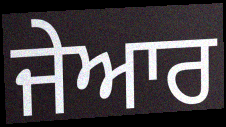
ਜੇਆਰ